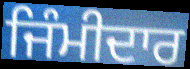
ਜਿੰਮੀਦਾਰ